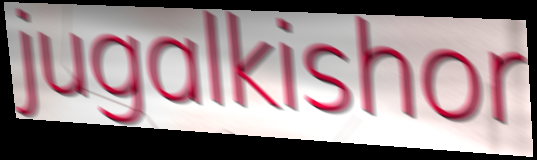
jugalkishor